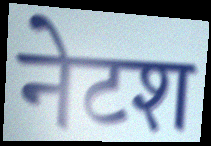
नेटश